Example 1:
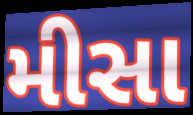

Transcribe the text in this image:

મીસા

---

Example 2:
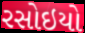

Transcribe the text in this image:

રસોઇયો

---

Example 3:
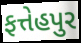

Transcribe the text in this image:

ફત્તેહપુર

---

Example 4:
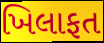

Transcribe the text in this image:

ખિલાફત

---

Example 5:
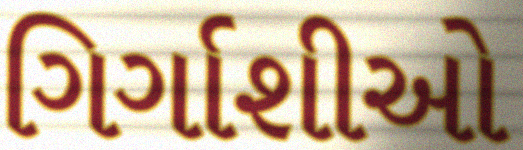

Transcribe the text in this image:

ગિર્ગાશીઓ